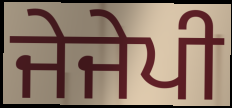
ਜੇਜੇਪੀ